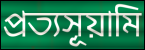
প্রত্যসূয়ামি